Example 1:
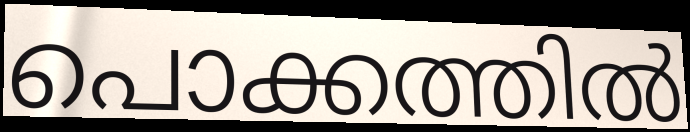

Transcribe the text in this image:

പൊക്കത്തിൽ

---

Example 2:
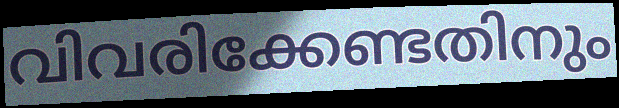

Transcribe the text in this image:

വിവരിക്കേണ്ടതിനും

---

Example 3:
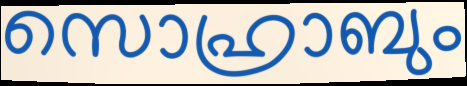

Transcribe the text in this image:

സൊഹ്രാബും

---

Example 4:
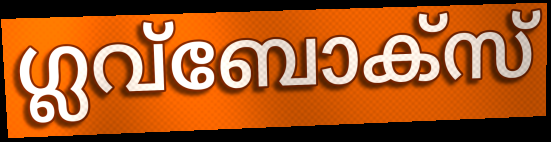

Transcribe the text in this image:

ഗ്ലവ്ബോക്സ്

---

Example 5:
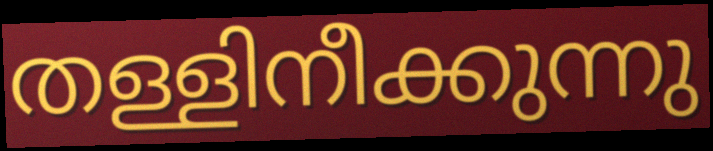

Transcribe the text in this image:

തള്ളിനീക്കുന്നു